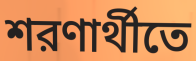
শরণার্থীতে